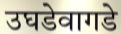
उघडेवागडे